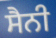
ਸੈਨੀ